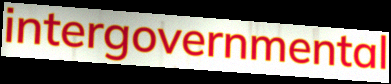
intergovernmental